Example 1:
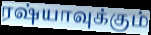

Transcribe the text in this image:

ரஷ்யாவுக்கும்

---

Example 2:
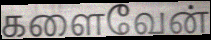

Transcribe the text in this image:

களைவேன்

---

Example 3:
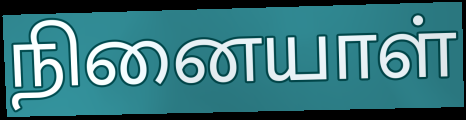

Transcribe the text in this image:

நினையாள்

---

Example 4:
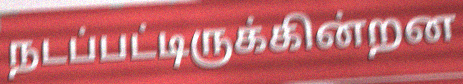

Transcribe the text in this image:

நடப்பட்டிருக்கின்றன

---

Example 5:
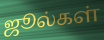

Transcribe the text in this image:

ஜூல்கள்